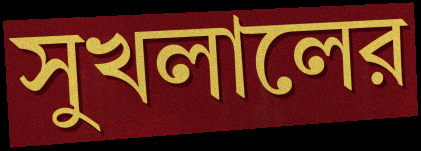
সুখলালের